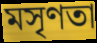
মসৃণতা